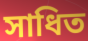
সাধিত